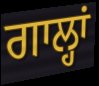
ਗਾਲ੍ਹਾਂ